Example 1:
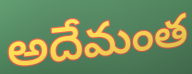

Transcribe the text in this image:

అదేమంత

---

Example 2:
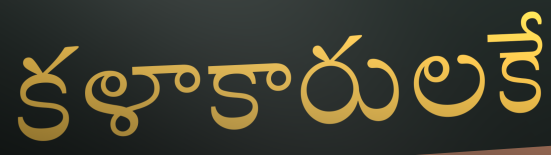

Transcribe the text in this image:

కళాకారులకే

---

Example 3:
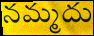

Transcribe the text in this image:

నమ్మదు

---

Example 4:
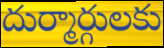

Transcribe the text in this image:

దుర్మార్గులకు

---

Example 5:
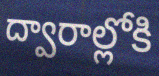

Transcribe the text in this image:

ద్వారాల్లోకి